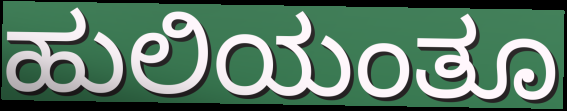
ಹುಲಿಯಂತೂ